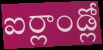
ఐర్లాండ్లో